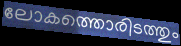
ലോകത്തൊരിടത്തും